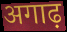
अगाढ़